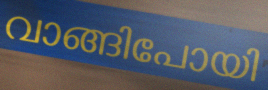
വാങ്ങിപോയി